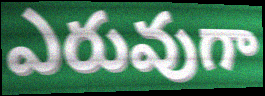
ఎరువుగా